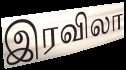
இரவிலா